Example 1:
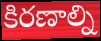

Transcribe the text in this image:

కిరణాల్ని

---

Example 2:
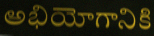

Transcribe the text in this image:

అభియోగానికి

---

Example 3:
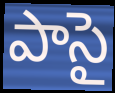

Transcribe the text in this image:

పాసై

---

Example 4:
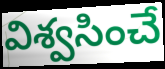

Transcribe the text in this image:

విశ్వసించే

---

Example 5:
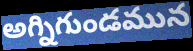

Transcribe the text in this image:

అగ్నిగుండమున